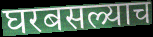
घरबसल्याच